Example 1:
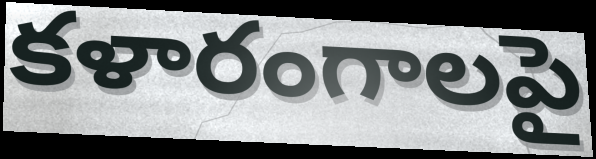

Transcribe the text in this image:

కళారంగాలపై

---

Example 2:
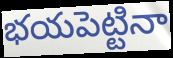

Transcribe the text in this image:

భయపెట్టినా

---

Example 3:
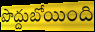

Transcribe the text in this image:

పొద్దుబోయింది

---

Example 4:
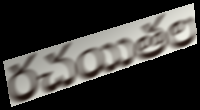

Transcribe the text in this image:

రచయితల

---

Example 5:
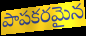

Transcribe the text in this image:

పాపకరమైన